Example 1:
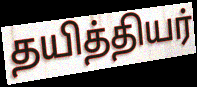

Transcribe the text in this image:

தயித்தியர்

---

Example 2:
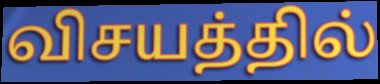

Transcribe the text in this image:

விசயத்தில்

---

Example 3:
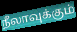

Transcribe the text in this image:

நீலாவுக்கும்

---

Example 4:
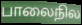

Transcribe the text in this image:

பாலைநில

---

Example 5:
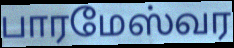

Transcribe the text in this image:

பாரமேஸ்வர